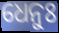
ଧେନୁଃ